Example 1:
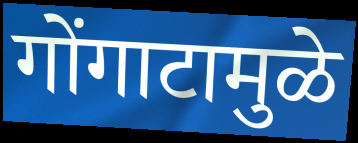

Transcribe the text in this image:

गोंगाटामुळे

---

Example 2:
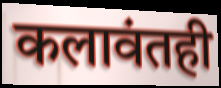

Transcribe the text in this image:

कलावंतही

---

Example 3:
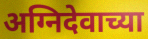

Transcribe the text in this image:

अग्निदेवाच्या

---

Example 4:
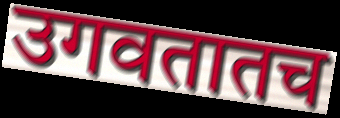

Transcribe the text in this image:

उगवतातच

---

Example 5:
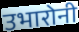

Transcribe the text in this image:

उभारोनी